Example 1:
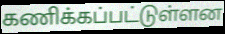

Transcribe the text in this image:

கணிக்கப்பட்டுள்ளன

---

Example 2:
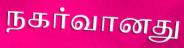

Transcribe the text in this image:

நகர்வானது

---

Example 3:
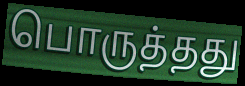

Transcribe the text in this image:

பொருத்தது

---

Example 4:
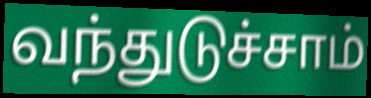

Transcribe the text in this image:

வந்துடுச்சாம்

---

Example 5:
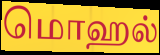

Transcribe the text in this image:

மொஹல்